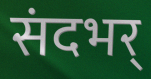
संदभर्